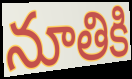
నూతికి